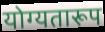
योग्यतारूप